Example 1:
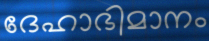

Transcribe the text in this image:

ദേഹാഭിമാനം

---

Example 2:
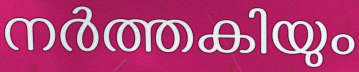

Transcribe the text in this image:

നർത്തകിയും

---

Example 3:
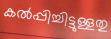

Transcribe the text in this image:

കൽപ്പിച്ചിട്ടുള്ളതു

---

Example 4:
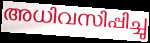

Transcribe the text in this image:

അധിവസിപ്പിച്ചു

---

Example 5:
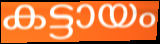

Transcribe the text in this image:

കട്ടായം